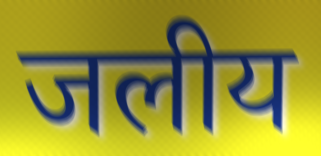
जलीय